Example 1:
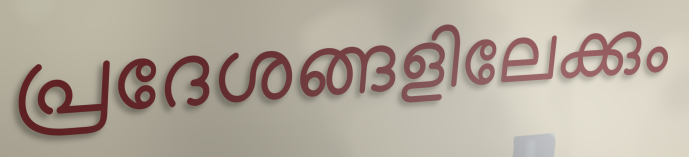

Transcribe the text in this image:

പ്രദേശങ്ങളിലേക്കും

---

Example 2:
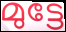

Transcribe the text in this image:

മുട്ടേ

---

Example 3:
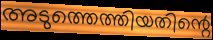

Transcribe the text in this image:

അടുത്തെത്തിയതിന്റെ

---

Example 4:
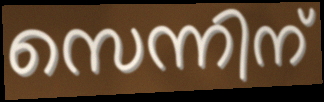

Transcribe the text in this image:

സെന്നിന്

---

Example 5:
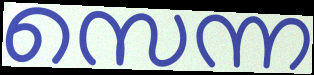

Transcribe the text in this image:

സെന്ന